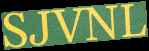
SJVNL